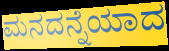
ಮನದನ್ನೆಯಾದ